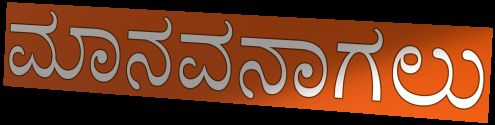
ಮಾನವನಾಗಲು